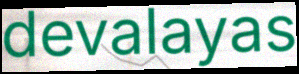
devalayas